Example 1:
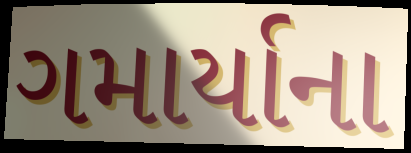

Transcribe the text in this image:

ગમાર્યાના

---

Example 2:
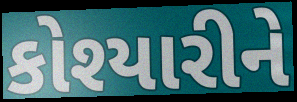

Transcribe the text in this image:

કોશ્યારીને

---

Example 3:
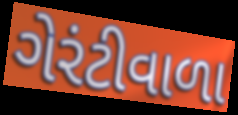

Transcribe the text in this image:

ગેરંટીવાળા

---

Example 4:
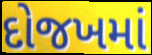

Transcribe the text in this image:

દોજખમાં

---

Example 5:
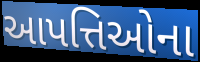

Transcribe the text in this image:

આપત્તિઓના